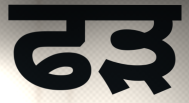
ਫੜ